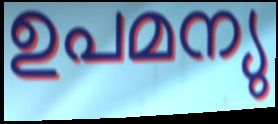
ഉപമന്യു